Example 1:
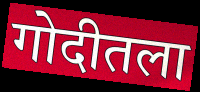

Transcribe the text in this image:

गोदीतला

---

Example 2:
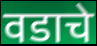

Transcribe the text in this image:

वडाचे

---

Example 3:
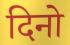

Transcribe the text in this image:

दिनो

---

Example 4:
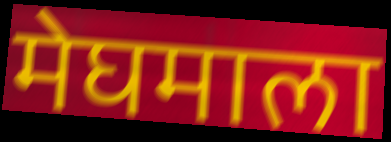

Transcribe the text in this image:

मेघमाला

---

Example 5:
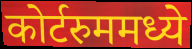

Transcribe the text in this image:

कोर्टरुममध्ये